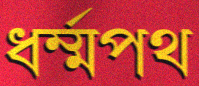
ধর্ম্মপথ